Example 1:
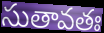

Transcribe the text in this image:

సుతావతః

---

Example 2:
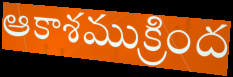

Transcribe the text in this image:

ఆకాశముక్రింద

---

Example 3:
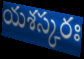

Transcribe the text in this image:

యశస్కరః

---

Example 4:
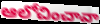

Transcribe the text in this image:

ఆలోచించావా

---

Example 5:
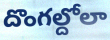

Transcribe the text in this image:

దొంగల్దోలా